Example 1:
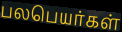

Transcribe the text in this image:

பலபெயர்கள்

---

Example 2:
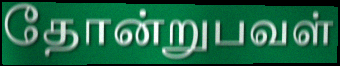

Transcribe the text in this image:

தோன்றுபவள்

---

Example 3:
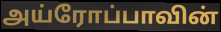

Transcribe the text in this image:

அய்ரோப்பாவின்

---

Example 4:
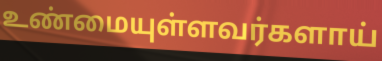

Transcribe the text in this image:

உண்மையுள்ளவர்களாய்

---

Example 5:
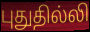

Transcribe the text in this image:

புதுதில்லி